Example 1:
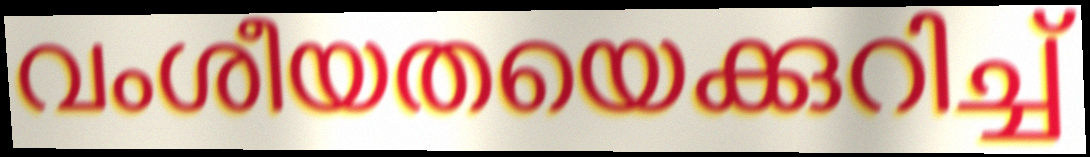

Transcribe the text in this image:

വംശീയതയെക്കുറിച്ച്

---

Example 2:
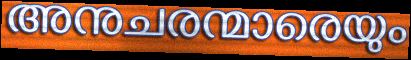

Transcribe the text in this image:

അനുചരന്മാരെയും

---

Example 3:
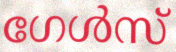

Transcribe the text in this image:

ഗേൾസ്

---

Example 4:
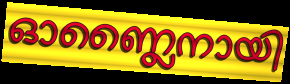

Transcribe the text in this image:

ഓണ്ലൈനായി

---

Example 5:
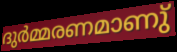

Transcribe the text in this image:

ദുർമ്മരണമാണു്